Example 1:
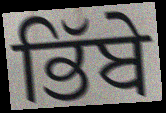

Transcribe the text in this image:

ਭਿੱਬੇ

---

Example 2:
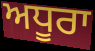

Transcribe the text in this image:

ਅਧੂਰਾ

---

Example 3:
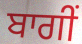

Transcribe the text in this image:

ਬਾਗੀਂ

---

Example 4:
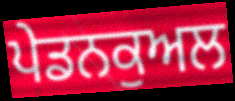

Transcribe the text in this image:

ਪੇਡਨਕੁਅਲ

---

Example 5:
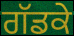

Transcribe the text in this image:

ਗੱਡਕੇ